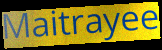
Maitrayee